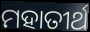
ମହାତୀର୍ଥ